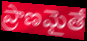
ప్రాణమైతే